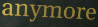
anymore